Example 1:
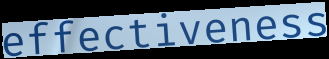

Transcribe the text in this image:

effectiveness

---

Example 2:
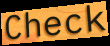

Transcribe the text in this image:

Check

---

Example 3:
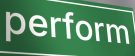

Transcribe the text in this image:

perform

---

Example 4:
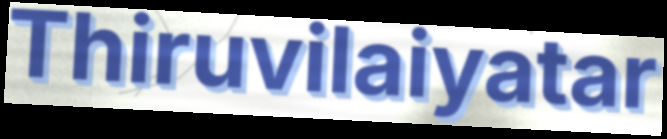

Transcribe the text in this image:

Thiruvilaiyatar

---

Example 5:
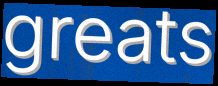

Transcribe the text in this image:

greats